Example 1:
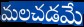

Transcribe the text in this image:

మలచడమే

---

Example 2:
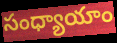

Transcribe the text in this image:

సంధ్యాయాం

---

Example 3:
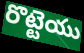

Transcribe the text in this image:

రొట్టెయు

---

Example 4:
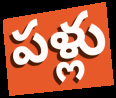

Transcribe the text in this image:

పళ్లు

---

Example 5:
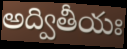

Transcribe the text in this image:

అద్వితీయః